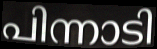
പിന്നാടി